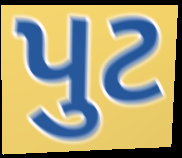
પુટ